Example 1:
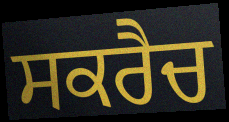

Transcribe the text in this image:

ਸਕਰੈਚ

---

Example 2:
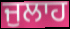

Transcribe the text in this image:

ਜੁਲਾਹ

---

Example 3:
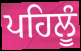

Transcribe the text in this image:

ਪਹਿਲੂੰ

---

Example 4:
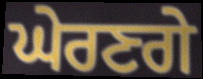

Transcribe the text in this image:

ਘੇਰਣਗੇ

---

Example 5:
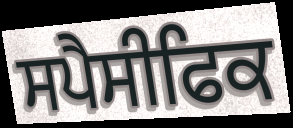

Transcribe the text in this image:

ਸਪੈਸੀਫਿਕ